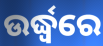
ଉର୍ଦ୍ଧ୍ଵରେ